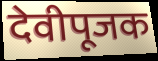
देवीपूजक